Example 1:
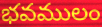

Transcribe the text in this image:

భవములం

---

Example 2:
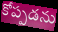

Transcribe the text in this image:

కోప్పడను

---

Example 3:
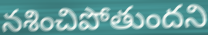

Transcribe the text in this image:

నశించిపోతుందని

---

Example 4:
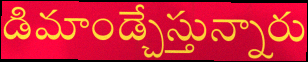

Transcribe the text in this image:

డిమాండ్చేస్తున్నారు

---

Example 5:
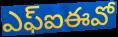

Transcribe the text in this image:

ఎఫ్ఐఈవో